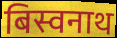
बिस्वनाथ